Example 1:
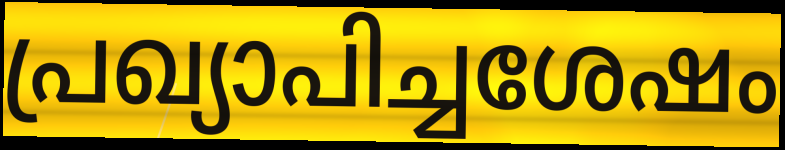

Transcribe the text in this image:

പ്രഖ്യാപിച്ചശേഷം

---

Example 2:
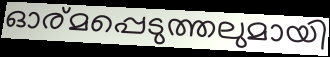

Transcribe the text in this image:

ഓര്മപ്പെടുത്തലുമായി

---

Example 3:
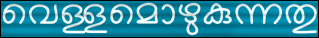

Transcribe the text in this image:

വെള്ളമൊഴുകുന്നതു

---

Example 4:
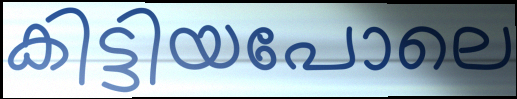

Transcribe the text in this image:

കിട്ടിയപോലെ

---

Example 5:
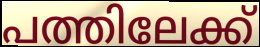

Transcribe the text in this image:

പത്തിലേക്ക്